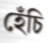
হেঁচি